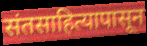
संतसाहित्यापासून